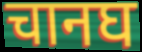
चानघ